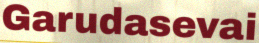
Garudasevai